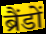
ब्रैंडों